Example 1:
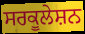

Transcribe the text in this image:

ਸਰਕੂਲੇਸ਼ਨ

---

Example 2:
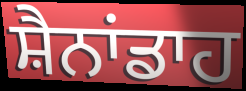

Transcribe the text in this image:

ਸ਼ੈਨਾਂਡਾਹ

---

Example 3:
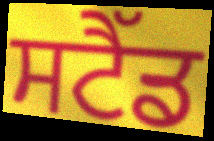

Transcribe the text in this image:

ਸਟੈੱਡ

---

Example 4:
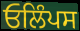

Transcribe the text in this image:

ਓਲਿੰਪਸ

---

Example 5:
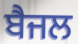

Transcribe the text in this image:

ਬੈਜਲ